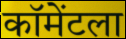
कॉमेंटला